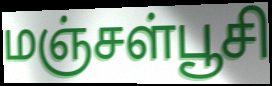
மஞ்சள்பூசி